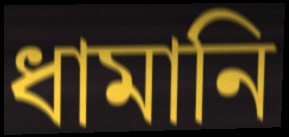
ধামানি